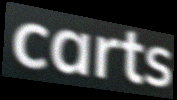
carts